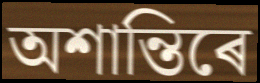
অশান্তিৰে